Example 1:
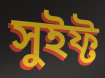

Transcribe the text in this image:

সুইফ্ট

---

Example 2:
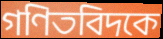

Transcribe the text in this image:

গণিতবিদকে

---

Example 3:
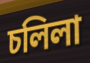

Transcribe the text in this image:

চলিলা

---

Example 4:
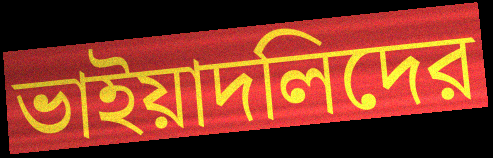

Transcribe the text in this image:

ভাইয়াদলিদের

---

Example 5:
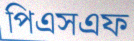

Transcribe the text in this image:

পিএসএফ